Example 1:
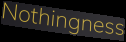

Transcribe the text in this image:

Nothingness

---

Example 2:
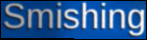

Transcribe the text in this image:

Smishing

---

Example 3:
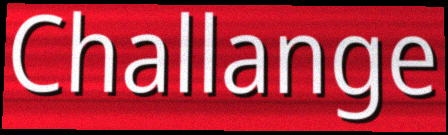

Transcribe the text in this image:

Challange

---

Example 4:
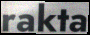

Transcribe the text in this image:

rakta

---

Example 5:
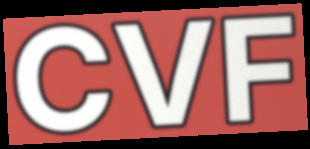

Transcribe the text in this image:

CVF